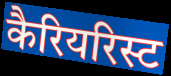
कैरियरिस्ट